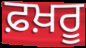
ਫ਼ਖ਼ਰੂ